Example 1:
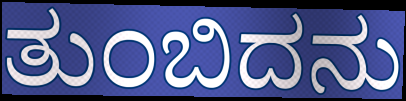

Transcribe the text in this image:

ತುಂಬಿದನು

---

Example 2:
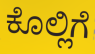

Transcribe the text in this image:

ಕೊಲ್ಲಿಗೆ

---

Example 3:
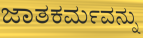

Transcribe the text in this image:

ಜಾತಕರ್ಮವನ್ನು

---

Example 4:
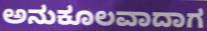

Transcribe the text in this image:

ಅನುಕೂಲವಾದಾಗ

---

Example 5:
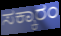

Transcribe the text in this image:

ಸಕ್ಕಾರಂ